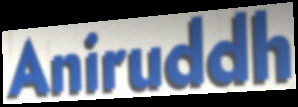
Aniruddh